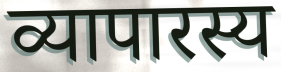
व्यापारस्य